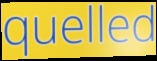
quelled